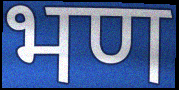
भण